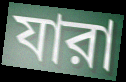
যারা